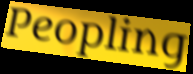
Peopling